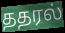
ததரல்